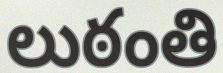
లుఠంతి